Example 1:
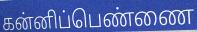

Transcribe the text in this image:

கன்னிப்பெண்ணை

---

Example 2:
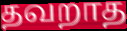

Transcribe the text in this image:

தவறாத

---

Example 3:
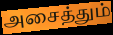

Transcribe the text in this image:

அசைத்தும்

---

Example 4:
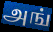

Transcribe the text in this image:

அங்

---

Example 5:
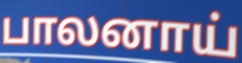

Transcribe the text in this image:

பாலனாய்